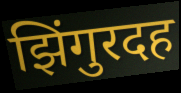
झिंगुरदह